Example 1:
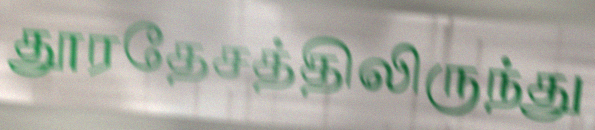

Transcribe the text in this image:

தூரதேசத்திலிருந்து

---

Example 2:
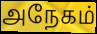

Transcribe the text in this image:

அநேகம்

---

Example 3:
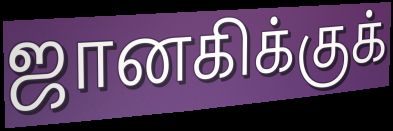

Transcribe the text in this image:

ஜானகிக்குக்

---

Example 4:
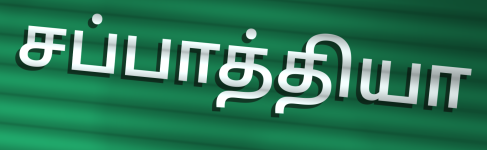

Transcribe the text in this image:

சப்பாத்தியா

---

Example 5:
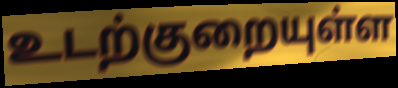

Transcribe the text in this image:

உடற்குறையுள்ள